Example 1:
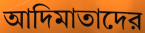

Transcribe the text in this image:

আদিমাতাদের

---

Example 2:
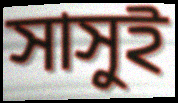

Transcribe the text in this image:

সাসুই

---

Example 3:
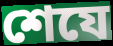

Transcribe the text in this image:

শেযে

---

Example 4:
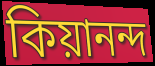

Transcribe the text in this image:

কিয়ানন্দ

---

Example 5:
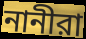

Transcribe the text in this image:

নানীরা